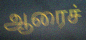
ஆரைச்